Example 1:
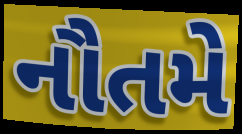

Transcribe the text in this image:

નૌતમે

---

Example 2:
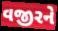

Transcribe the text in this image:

વજીરને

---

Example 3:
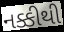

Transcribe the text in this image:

નક્કીથી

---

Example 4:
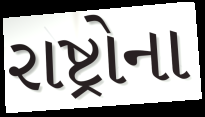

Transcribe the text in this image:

રાષ્ટ્રોના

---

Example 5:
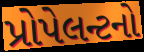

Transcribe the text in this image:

પ્રોપેલન્ટનો